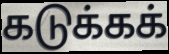
கடுக்கக்